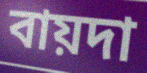
বায়দা